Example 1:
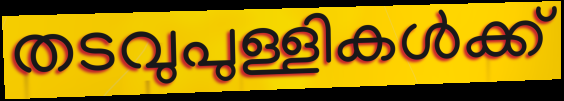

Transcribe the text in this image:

തടവുപുള്ളികൾക്ക്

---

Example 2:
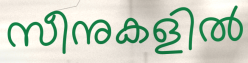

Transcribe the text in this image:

സീനുകളിൽ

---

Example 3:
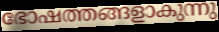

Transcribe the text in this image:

ഭോഷത്തങ്ങളാകുന്നു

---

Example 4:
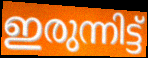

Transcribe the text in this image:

ഇരുന്നിട്ട്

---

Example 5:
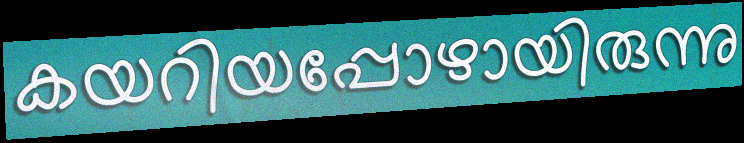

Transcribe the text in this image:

കയറിയപ്പോഴായിരുന്നു